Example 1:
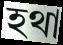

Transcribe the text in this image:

হথা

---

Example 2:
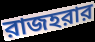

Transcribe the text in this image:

রাজহরার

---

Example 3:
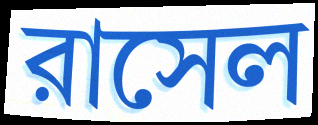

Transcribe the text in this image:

রাসেল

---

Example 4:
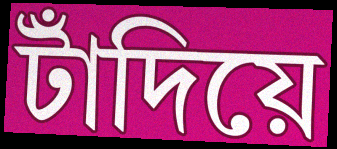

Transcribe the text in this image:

টাঁদিয়ে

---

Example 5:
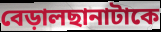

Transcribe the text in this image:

বেড়ালছানাটাকে